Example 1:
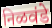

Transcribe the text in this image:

निळवंडे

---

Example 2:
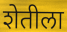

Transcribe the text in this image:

शेतीला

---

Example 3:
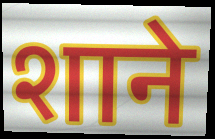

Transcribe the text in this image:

शाने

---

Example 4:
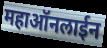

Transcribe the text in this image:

महाऑनलाईन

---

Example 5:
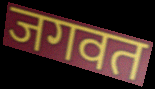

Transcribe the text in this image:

जगवत